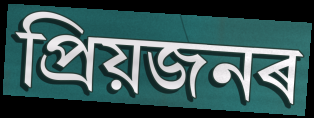
প্ৰিয়জনৰ